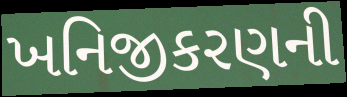
ખનિજીકરણની